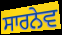
ਸਾਰਨੇਵ